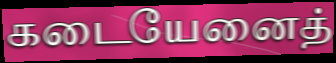
கடையேனைத்